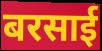
बरसाई